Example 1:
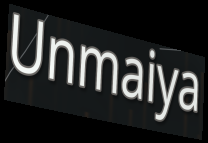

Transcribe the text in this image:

Unmaiya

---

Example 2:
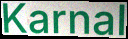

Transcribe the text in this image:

Karnal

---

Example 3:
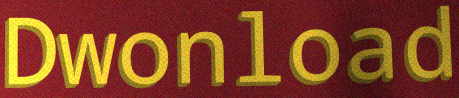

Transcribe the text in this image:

Dwonload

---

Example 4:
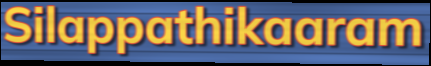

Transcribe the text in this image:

Silappathikaaram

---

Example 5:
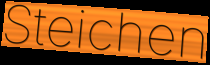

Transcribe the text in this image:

Steichen